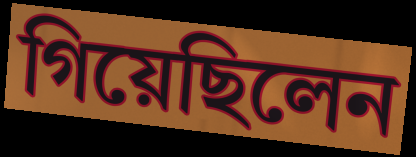
গিয়েছিলেন